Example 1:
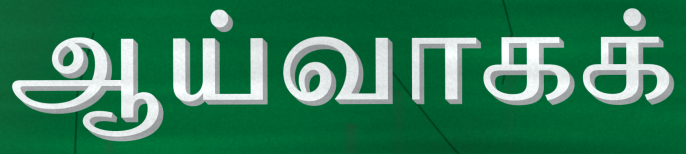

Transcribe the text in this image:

ஆய்வாகக்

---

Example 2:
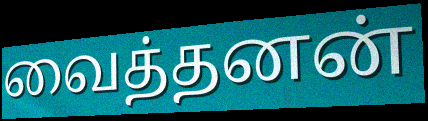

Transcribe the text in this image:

வைத்தனன்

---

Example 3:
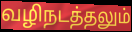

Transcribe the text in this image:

வழிநடத்தலும்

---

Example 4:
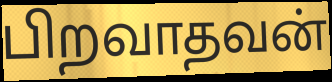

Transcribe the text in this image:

பிறவாதவன்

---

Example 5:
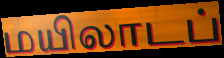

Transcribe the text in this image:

மயிலாடப்